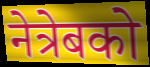
नेत्रेबको